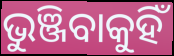
ଭୁଞ୍ଜିବାକୁହିଁ